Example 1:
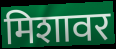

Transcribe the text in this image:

मिशावर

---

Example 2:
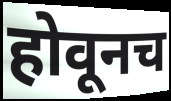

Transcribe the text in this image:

होवूनच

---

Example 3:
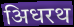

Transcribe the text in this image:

अिधरथ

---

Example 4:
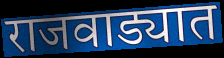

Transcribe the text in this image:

राजवाड्यात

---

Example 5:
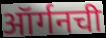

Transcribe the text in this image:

ऑर्गनची